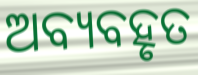
ଅବ୍ୟବହୃତ